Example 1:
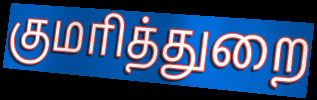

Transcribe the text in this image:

குமரித்துறை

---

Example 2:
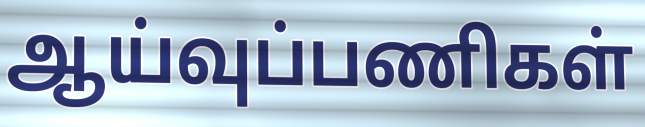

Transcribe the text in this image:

ஆய்வுப்பணிகள்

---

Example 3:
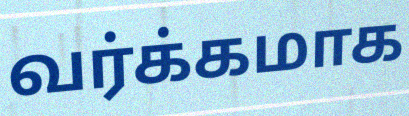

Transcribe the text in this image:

வர்க்கமாக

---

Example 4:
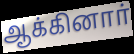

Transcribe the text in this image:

ஆக்கினார்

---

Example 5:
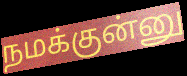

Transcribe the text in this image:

நமக்குன்னு